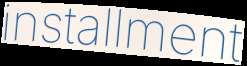
installment